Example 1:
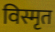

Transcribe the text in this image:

विस्मृत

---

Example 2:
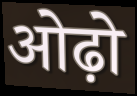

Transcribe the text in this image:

ओढ़ो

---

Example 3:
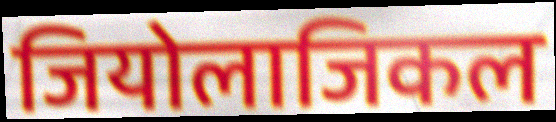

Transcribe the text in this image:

जियोलाजिकल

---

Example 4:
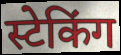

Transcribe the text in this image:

स्टेकिंग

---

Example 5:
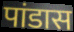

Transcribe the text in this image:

पांडास